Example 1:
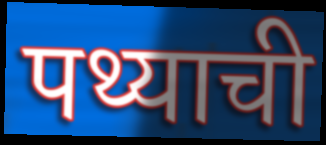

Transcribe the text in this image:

पथ्याची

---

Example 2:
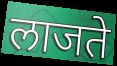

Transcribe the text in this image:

लाजते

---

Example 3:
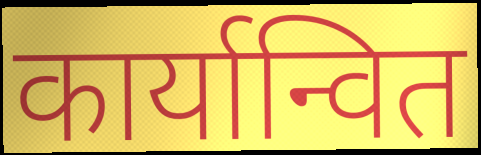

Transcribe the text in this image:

कार्यान्वित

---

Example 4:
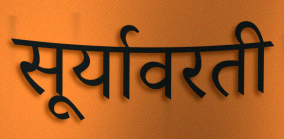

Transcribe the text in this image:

सूर्यावरती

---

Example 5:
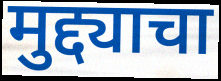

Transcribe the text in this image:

मुद्द्याचा